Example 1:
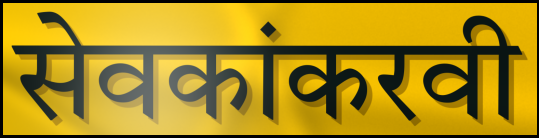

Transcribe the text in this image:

सेवकांकरवी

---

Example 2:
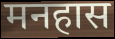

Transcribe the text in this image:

मनहास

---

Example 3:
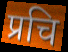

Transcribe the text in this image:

प्रचि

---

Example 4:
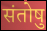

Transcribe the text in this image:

संतोषु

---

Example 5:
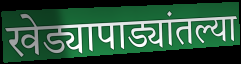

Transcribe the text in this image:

खेड्यापाड्यांतल्या